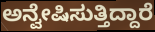
ಅನ್ವೇಷಿಸುತ್ತಿದ್ದಾರೆ